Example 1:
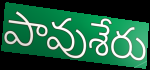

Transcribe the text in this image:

పావుశేరు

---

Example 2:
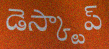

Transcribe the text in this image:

డెస్క్టాప్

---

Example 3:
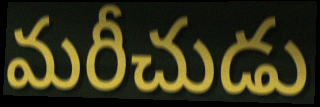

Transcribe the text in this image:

మరీచుడు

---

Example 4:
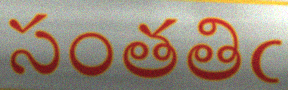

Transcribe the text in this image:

సంతతిఁ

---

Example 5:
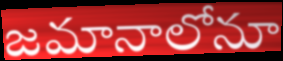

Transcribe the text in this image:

జమానాలోనూ